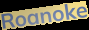
Roanoke